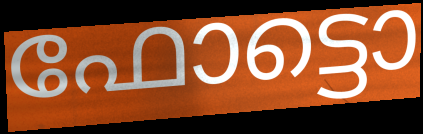
ഫോട്ടൊ